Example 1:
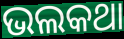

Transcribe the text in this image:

ଭଲକଥା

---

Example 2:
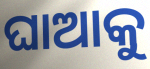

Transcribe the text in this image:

ଘାଆକୁ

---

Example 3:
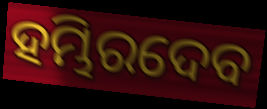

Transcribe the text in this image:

ହମ୍ଭିରଦେବ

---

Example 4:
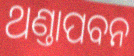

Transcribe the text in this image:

ଥଣ୍ତାପବନ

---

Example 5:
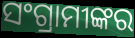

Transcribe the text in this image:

ସଂଗ୍ରାମୀଙ୍କର